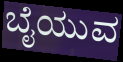
ಬೈಯುವ